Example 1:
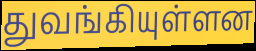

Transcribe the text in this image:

துவங்கியுள்ளன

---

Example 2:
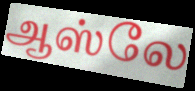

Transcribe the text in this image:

ஆஸ்லே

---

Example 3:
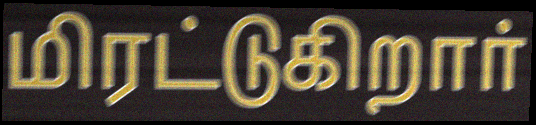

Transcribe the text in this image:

மிரட்டுகிறார்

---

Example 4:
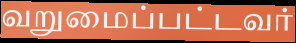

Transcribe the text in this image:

வறுமைப்பட்டவர்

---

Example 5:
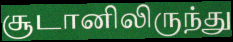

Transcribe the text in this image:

சூடானிலிருந்து